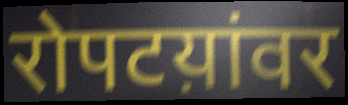
रोपटय़ांवर